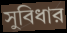
সুবিধার